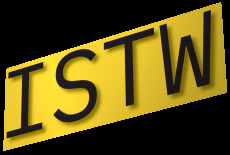
ISTW